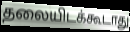
தலையிடக்கூடாது